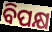
ବିପକ୍ଷ